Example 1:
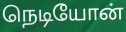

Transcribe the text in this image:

நெடியோன்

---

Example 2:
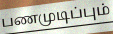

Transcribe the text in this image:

பணமுடிப்பும்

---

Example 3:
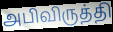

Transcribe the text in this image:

அபிவிருத்தி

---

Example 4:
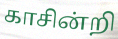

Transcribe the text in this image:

காசின்றி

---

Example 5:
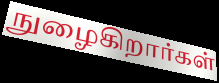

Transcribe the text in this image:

நுழைகிறார்கள்